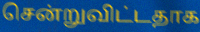
சென்றுவிட்டதாக